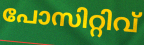
പോസിറ്റിവ്